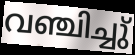
വഞ്ചിച്ചു്